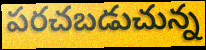
పరచబడుచున్న